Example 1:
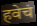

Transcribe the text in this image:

हवेचं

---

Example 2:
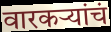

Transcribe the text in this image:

वारकऱ्यांचं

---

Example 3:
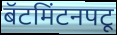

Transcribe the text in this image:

बॅटमिंटनपटू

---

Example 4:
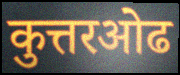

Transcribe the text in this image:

कुत्तरओढ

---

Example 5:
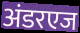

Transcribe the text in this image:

अंडरएज